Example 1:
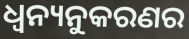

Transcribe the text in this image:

ଧ୍ବନ୍ୟନୁକରଣର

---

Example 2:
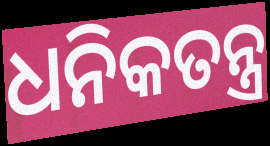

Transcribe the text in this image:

ଧନିକତନ୍ତ୍ର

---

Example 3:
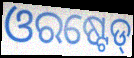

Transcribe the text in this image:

ଓରଷ୍ଟେଡ୍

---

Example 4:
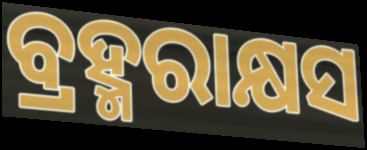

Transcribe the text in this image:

ବ୍ରହ୍ମରାକ୍ଷସ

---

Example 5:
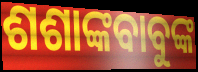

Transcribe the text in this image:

ଶଶାଙ୍କବାବୁଙ୍କ